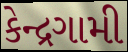
કેન્દ્રગામી